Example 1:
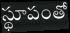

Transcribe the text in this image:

స్థూపంతో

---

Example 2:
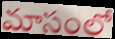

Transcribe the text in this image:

మాసంలో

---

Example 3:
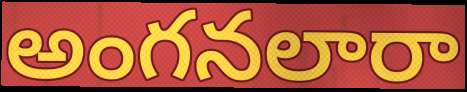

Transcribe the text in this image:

అంగనలారా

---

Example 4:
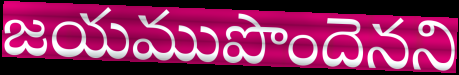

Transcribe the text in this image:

జయముపొందెనని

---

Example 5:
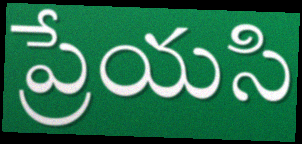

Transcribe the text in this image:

ప్రేయసి